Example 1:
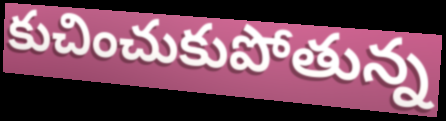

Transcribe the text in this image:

కుచించుకుపోతున్న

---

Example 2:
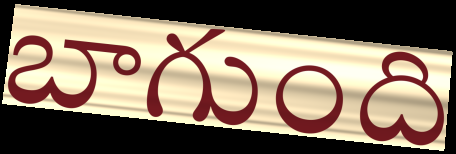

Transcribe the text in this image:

బాగుంది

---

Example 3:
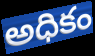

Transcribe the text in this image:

అధికం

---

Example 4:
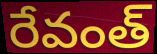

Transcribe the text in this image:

రేవంత్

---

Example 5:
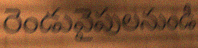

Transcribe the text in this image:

రెండువైపులనుండీ